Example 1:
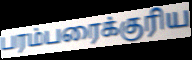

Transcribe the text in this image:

பரம்பரைக்குரிய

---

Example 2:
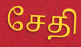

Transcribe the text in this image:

சேதி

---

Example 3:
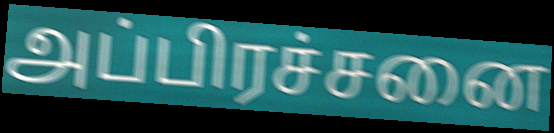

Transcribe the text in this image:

அப்பிரச்சனை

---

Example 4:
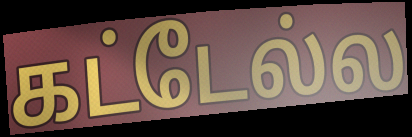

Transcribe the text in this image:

கட்டேல்ல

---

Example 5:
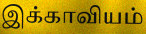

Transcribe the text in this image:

இக்காவியம்